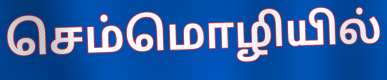
செம்மொழியில்